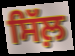
ਸਿੱਲ਼